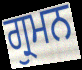
ਗ੍ਰੁਮਨ